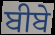
ਬੀਬੇ